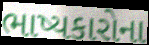
ભાષ્યકારોના